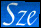
Sze